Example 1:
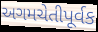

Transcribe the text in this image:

અગમચેતીપૂર્વક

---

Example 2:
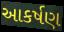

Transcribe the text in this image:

આકર્ષણ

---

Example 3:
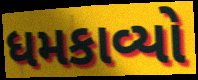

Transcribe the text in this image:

ધમકાવ્યો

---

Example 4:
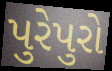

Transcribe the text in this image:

પુરેપુરો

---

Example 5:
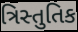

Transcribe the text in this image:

ત્રિસ્તુતિક